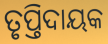
ତୃପ୍ତିଦାୟକ